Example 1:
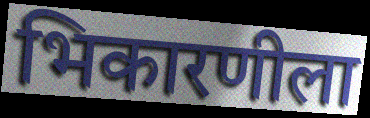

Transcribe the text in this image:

भिकारणीला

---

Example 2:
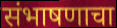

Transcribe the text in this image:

संभाषणाचा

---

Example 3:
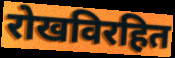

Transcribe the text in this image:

रोखविरहित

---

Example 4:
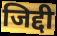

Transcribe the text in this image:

जिद्दी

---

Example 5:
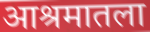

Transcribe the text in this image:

आश्रमातला